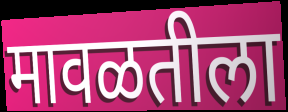
मावळतीला